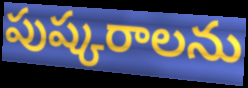
పుష్కరాలను